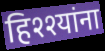
हिश्श्यांना